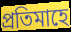
প্ৰতিমাহে